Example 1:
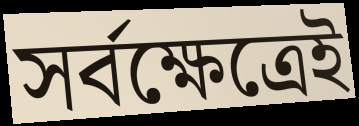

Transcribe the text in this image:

সর্বক্ষেত্রেই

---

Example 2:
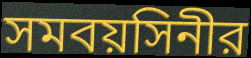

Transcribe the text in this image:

সমবয়সিনীর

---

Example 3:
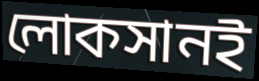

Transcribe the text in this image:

লোকসানই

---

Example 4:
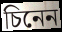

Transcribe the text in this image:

চিনেন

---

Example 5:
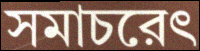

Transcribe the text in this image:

সমাচরেৎ